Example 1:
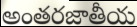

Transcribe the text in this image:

అంతరజాతీయ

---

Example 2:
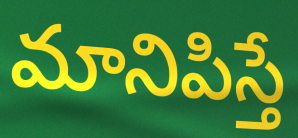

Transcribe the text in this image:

మానిపిస్తే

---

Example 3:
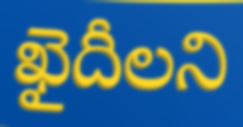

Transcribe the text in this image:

ఖైదీలని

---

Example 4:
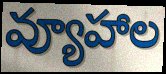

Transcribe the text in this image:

వ్యూహాల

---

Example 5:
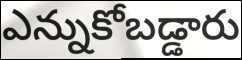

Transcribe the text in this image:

ఎన్నుకోబడ్డారు